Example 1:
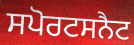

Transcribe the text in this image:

ਸਪੋਰਟਸਨੈਟ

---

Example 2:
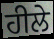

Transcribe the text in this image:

ਹੀਲੇ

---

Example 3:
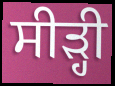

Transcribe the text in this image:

ਸੀੜ੍ਹੀ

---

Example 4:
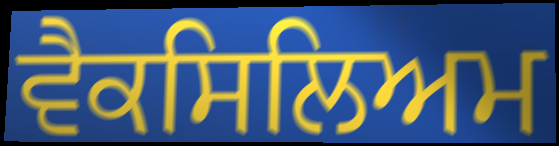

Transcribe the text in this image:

ਵੈਕਸਿਲਿਅਮ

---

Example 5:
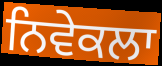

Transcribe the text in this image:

ਨਿਵੇਕਲਾ